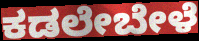
ಕಡಲೇಬೇಳೆ